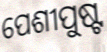
ପେଶୀପୁଷ୍ଟ